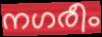
നഗരീം